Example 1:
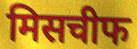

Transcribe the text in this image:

मिसचीफ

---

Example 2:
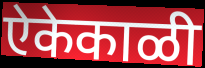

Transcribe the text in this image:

ऐकेकाळी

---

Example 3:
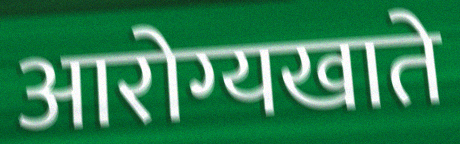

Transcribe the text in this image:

आरोग्यखाते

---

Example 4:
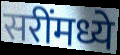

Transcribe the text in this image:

सरींमध्ये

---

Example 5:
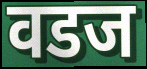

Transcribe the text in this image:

वडज